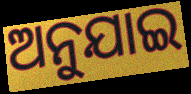
ଅନୁଯାଇ